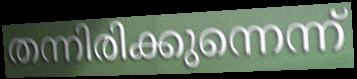
തന്നിരിക്കുന്നെന്ന്